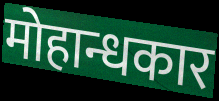
मोहान्धकार